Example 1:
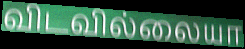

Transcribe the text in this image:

விடவில்லையா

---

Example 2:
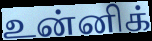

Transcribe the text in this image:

உன்னிக்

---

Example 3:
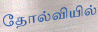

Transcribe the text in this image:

தோல்வியில்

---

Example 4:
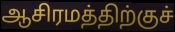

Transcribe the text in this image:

ஆசிரமத்திற்குச்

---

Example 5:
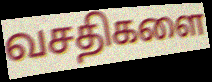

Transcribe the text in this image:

வசதிகளை